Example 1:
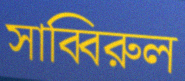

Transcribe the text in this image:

সাব্বিরুল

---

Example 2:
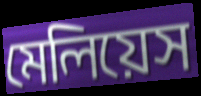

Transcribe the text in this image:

মেলিয়েস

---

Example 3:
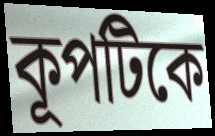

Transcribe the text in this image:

কূপটিকে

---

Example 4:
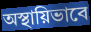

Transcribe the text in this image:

অস্থায়িভাবে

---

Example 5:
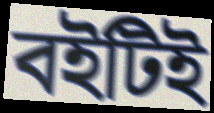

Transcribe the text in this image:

বইটিই